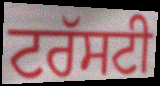
ਟਰੱਸਟੀ